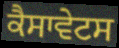
ਕੈਸਾਵੇਟਸ